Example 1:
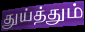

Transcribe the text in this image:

துய்த்தும்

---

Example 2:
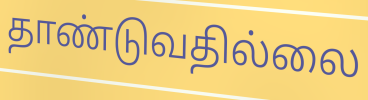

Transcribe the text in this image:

தாண்டுவதில்லை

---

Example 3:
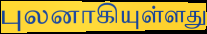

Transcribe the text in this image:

புலனாகியுள்ளது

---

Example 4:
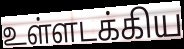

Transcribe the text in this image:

உள்ளடக்கிய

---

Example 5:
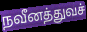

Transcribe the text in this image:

நவீனத்துவச்